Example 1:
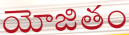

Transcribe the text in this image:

యోజితం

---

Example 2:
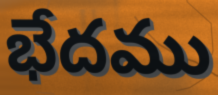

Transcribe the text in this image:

భేదము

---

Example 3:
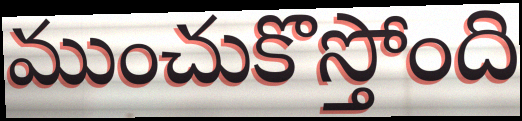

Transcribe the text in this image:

ముంచుకొస్తోంది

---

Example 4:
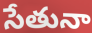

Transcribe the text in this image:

సేతునా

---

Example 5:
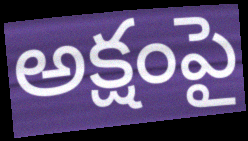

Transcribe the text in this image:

అక్షంపై